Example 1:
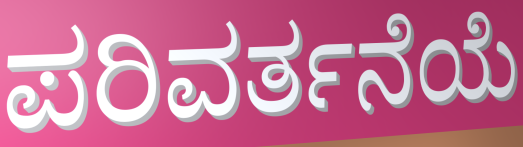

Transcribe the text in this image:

ಪರಿವರ್ತನೆಯೆ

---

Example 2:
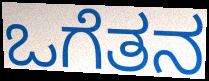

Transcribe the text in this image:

ಒಗೆತನ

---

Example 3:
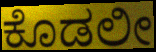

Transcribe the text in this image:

ಕೊಡಲೀ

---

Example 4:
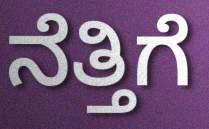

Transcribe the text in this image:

ನೆತ್ತಿಗೆ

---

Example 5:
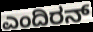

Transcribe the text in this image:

ಎಂದಿರನ್